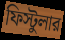
ফিস্টুলার